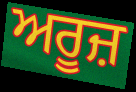
ਅਰੂਜ਼